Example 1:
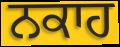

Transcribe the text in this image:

ਨਕਾਹ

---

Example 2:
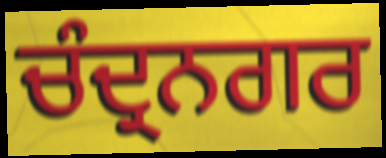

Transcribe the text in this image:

ਚੰਦ੍ਰਨਗਰ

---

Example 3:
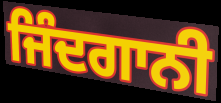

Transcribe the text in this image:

ਜਿੰਦਗਾਨੀ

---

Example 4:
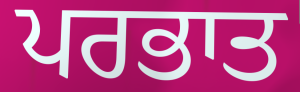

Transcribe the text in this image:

ਪਰਭਾਤ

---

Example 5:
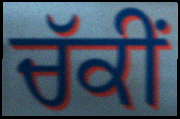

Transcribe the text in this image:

ਚੱਕੀਂ